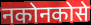
नकोनकोसे